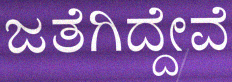
ಜತೆಗಿದ್ದೇವೆ